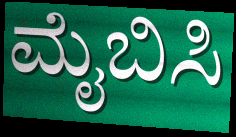
ಮೈಬಿಸಿ